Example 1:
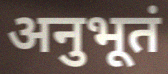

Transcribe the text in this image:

अनुभूतं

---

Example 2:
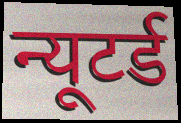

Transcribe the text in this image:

न्यूटर्ड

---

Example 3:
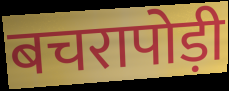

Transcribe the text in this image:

बचरापोड़ी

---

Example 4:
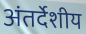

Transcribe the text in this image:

अंतर्देशीय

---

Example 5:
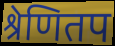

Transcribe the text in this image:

श्रेणितप